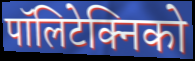
पॉलिटेक्निको